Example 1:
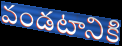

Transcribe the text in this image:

వండటానికి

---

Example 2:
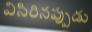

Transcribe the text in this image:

విసిరినప్పుడు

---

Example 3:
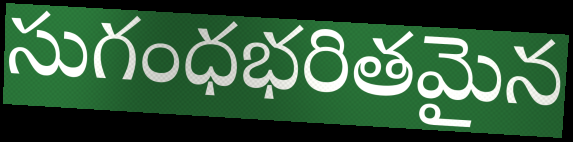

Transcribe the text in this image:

సుగంధభరితమైన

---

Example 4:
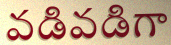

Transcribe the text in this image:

వడివడిగా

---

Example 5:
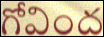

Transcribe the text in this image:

గోవింద